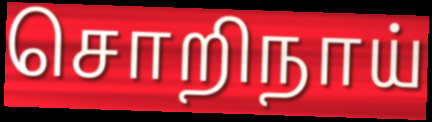
சொறிநாய்